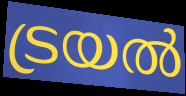
ട്രയൽ